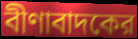
বীণাবাদকের